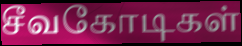
சீவகோடிகள்